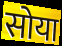
सोया